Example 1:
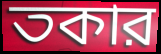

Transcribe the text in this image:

তকার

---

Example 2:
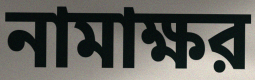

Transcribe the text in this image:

নামাক্ষর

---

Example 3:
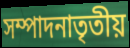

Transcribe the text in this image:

সম্পাদনাতৃতীয়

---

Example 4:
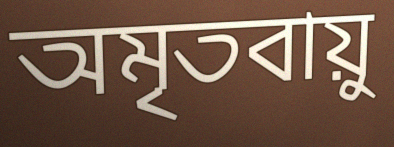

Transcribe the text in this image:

অমৃতবায়ু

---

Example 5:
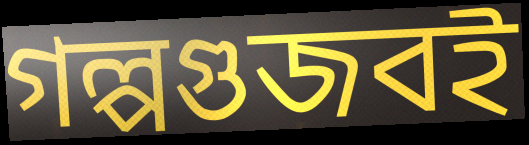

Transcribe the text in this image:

গল্পগুজবই